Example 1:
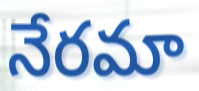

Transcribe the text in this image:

నేరమా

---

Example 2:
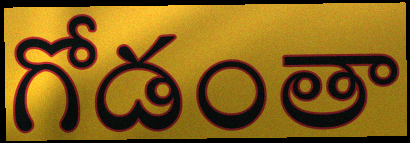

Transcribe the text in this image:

గోడంతా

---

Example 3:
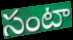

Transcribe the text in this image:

సంటా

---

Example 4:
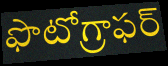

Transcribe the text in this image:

ఫొటోగ్రాఫర్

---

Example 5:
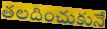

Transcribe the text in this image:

తలదించుకునే